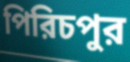
পিরিচপুর